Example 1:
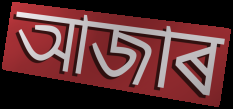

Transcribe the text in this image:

আজাৰ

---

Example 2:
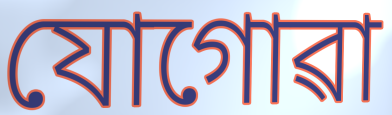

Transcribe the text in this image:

যোগোৱা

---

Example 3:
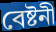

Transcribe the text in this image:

বেষ্টনী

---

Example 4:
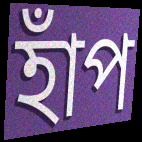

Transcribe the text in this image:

হাঁপ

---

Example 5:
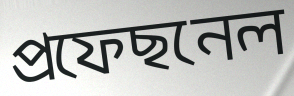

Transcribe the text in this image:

প্ৰফেছনেল